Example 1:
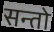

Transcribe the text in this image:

सन्तो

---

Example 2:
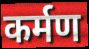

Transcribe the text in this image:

कर्मण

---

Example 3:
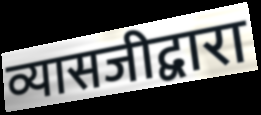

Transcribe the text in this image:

व्यासजीद्वारा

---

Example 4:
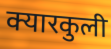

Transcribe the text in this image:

क्यारकुली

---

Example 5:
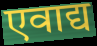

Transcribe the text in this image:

एवाद्य